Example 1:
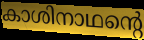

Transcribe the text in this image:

കാശിനാഥന്റെ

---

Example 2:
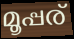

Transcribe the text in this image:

മൂപ്പര്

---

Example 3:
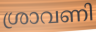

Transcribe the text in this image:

ശ്രാവണി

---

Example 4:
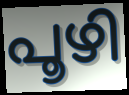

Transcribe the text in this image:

പൂഴി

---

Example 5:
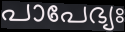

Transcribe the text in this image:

പാപേഭ്യഃ